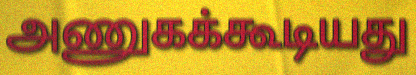
அணுகக்கூடியது